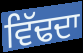
ਵਿੱਢਦਾ